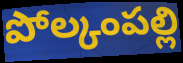
పోల్కంపల్లి